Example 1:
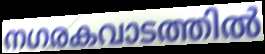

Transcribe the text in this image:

നഗരകവാടത്തിൽ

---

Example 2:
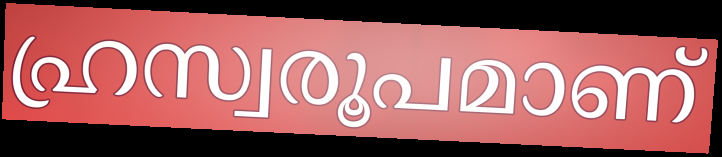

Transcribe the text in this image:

ഹ്രസ്വരൂപമാണ്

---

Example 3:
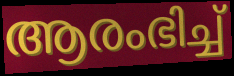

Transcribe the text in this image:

ആരംഭിച്ച്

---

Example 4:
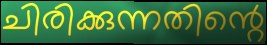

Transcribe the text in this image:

ചിരിക്കുന്നതിന്റെ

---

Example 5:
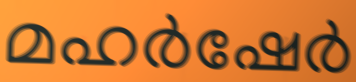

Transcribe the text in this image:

മഹർഷേർ